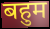
बहुम